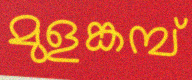
മുളങ്കമ്പ്